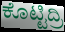
ಕೊಟ್ಟಿದ್ರಿ